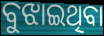
ବୁଝାଇଥିବା